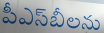
పీఎస్‌బీలను